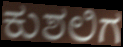
ಕುಶಲಿಗ